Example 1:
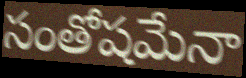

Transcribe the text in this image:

సంతోషమేనా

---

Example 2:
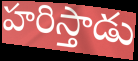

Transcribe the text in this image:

హరిస్తాడు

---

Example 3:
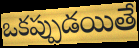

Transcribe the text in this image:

ఒకప్పుడయితే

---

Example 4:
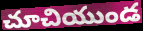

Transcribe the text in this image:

చూచియుండ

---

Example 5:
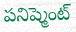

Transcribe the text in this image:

పనిష్మెంట్